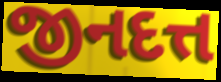
જીનદત્ત